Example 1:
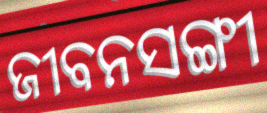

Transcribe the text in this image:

ଜୀବନସଙ୍ଗୀ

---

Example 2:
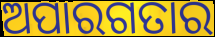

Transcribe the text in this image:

ଅପାରଗତାର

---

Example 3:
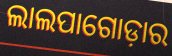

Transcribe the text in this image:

ଲାଲପାଗୋଡ଼ାର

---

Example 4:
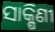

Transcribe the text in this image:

ସାକ୍ଷିଣୀ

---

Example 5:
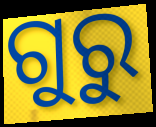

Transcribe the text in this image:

ଗୁରୁ